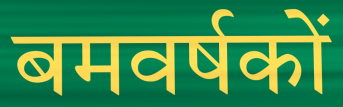
बमवर्षकों